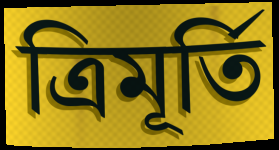
ত্ৰিমূৰ্তি